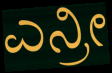
ಎನ್ರೀ